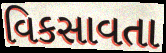
વિકસાવતા